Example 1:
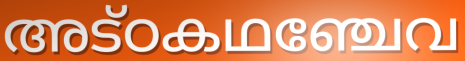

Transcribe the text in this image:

അട്ഠകഥഞ്ചേവ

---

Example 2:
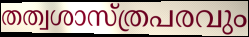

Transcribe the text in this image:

തത്വശാസ്ത്രപരവും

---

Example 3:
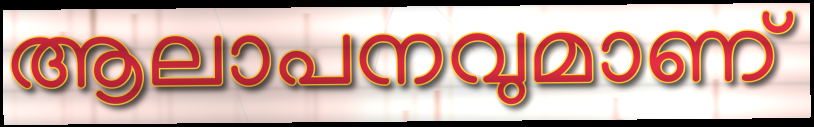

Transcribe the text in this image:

ആലാപനവുമാണ്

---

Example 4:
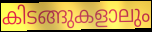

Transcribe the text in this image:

കിടങ്ങുകളാലും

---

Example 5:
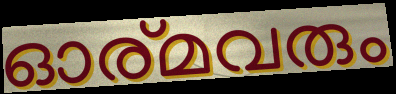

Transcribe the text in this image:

ഓര്മവരും